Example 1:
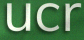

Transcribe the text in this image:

ucr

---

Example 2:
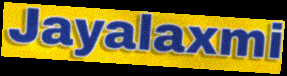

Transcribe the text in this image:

Jayalaxmi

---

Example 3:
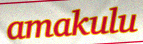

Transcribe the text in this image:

amakulu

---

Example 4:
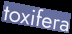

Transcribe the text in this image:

toxifera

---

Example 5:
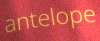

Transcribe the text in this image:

antelope